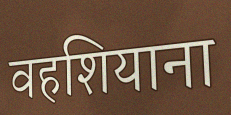
वहशियाना